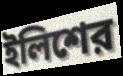
ইলিশের